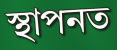
স্থাপনত